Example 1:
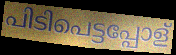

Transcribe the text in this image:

പിടിപെട്ടപ്പോള്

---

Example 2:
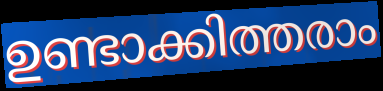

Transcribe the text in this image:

ഉണ്ടാക്കിത്തരാം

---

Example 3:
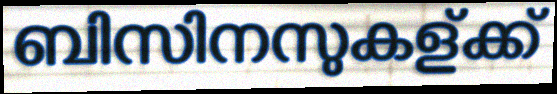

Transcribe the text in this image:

ബിസിനസുകള്ക്ക്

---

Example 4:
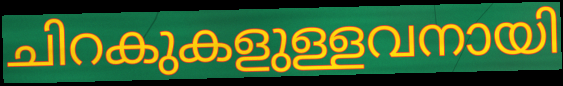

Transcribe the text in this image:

ചിറകുകളുള്ളവനായി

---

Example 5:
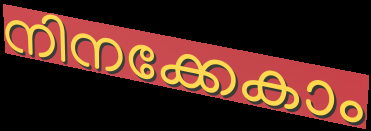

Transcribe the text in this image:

നിനക്കേകാം